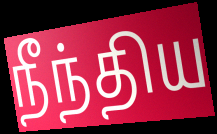
நீந்திய